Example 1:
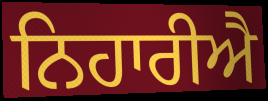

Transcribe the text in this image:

ਨਿਹਾਰੀਐ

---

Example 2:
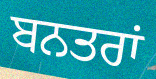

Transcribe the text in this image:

ਬਨਤਰਾਂ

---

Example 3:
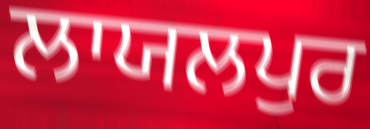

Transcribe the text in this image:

ਲਾਯਲਪੁਰ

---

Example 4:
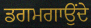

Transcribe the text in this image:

ਡਗਮਗਾਉਂਦੇ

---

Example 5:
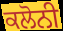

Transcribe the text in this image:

ਕਲੋਨੀ